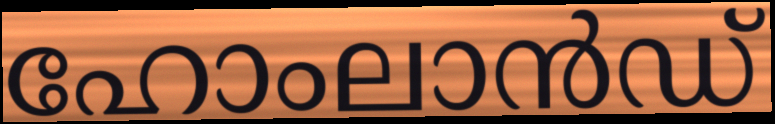
ഹോംലാൻഡ്